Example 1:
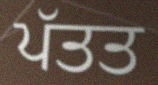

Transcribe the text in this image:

ਪੱਤਤ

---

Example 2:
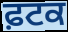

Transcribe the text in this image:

ਫ਼ਟਕ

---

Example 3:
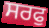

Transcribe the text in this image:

ਸਰਫੁ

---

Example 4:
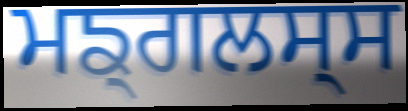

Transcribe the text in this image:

ਮਙ੍ਗਲਸ੍ਸ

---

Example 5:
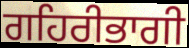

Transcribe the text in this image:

ਗਹਿਰੀਭਾਗੀ